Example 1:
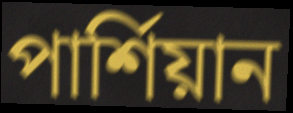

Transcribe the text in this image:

পার্শিয়ান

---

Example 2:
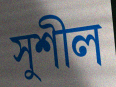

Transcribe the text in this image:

সুশীল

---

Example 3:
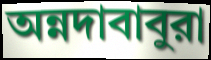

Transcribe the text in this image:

অন্নদাবাবুরা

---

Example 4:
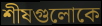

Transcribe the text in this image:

শীষগুলোকে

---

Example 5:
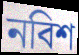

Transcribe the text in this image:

নবিশ